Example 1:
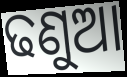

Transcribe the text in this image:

ଢଣୁଆ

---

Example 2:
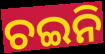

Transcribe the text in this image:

ଚଇନି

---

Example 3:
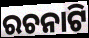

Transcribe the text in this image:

ରଚନାଟି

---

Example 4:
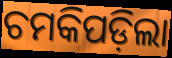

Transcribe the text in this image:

ଚମକିପଡ଼ିଲା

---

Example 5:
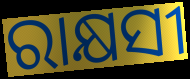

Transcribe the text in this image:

ରାକ୍ଷସୀ